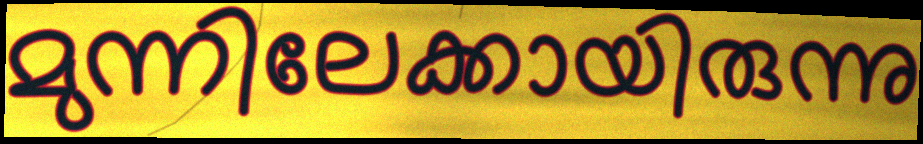
മുന്നിലേക്കായിരുന്നു